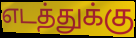
எடத்துக்கு